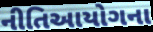
નીતિઆયોગના